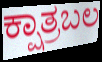
ಕ್ಷಾತ್ರಬಲ